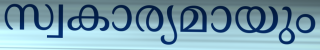
സ്വകാര്യമായും